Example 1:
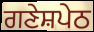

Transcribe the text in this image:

ਗਣੇਸ਼ਪੇਠ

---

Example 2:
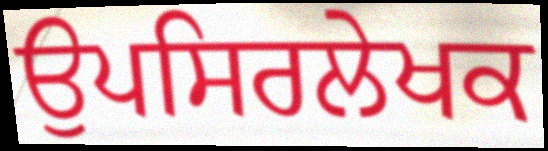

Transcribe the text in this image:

ਉਪਸਿਰਲੇਖਕ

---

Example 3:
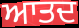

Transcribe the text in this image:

ਆਤਦ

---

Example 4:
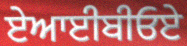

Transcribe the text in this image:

ਏਆਈਬੀਓਏ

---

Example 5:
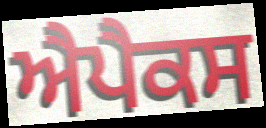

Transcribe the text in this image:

ਐਪੈਕਸ